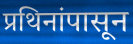
प्रथिनांपासून